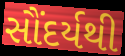
સૌંદર્યથી